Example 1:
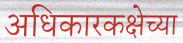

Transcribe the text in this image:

अधिकारकक्षेच्या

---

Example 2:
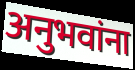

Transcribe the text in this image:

अनुभवांना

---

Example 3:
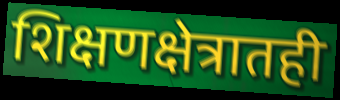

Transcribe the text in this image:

शिक्षणक्षेत्रातही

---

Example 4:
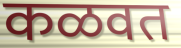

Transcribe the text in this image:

कळवत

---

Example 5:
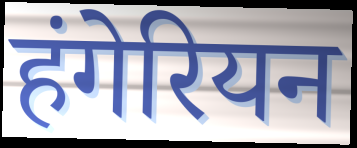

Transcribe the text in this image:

हंगेरियन